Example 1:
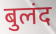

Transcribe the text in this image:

बुलंद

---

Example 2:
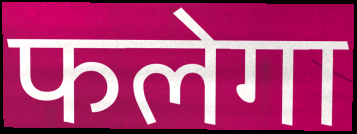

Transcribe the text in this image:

फलेगा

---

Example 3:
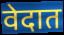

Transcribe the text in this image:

वेदात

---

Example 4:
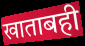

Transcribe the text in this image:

खाताबही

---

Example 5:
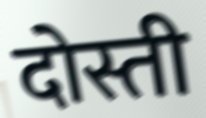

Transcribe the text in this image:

दोस्ती